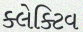
ક્લેક્ટિવ